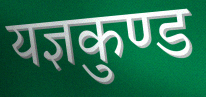
यज्ञकुण्ड